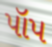
પૉપ